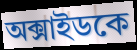
অক্সাইডকে